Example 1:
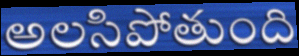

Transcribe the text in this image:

అలసిపోతుంది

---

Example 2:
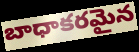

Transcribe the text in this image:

బాధాకరమైన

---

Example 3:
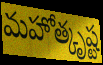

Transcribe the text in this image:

మహోత్కృష్ట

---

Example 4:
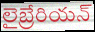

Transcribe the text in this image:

లైబ్రేరియన్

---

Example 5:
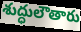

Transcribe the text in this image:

శుద్ధులౌతారు